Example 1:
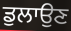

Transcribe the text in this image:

ਡੁਲਾਉਣ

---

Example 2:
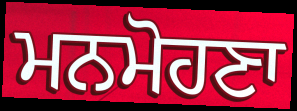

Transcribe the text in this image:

ਮਨਮੋਹਣਾ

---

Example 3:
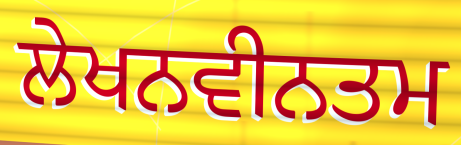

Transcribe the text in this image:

ਲੇਖਨਵੀਨਤਮ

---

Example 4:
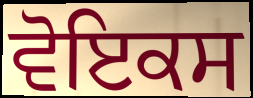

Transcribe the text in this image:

ਵੋਇਕਸ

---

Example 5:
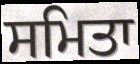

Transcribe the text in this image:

ਸਮਿਤਾ